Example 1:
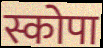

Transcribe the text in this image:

स्कोपा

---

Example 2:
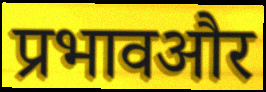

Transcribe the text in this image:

प्रभावऔर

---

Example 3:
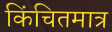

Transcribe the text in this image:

किंचितमात्र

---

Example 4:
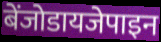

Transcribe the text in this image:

बेंजोडायजेपाइन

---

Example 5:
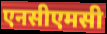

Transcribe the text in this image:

एनसीएमसी